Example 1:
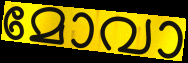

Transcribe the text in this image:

മോവാ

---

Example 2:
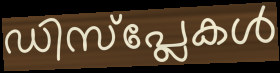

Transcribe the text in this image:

ഡിസ്പ്ലേകൾ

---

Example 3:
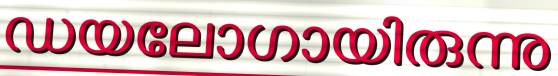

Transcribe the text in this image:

ഡയലോഗായിരുന്നു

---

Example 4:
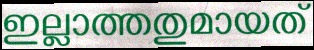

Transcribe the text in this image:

ഇല്ലാത്തതുമായത്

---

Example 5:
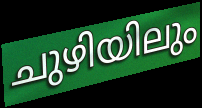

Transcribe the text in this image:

ചുഴിയിലും